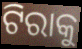
ଟିରାକୁ